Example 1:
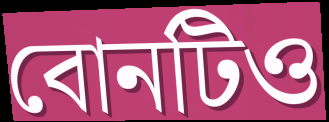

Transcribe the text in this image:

বোনটিও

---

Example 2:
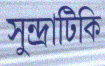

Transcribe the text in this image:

সুন্দ্রাটিকি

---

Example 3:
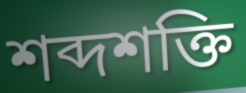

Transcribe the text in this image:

শব্দশক্তি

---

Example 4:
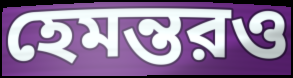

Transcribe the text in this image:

হেমন্তরও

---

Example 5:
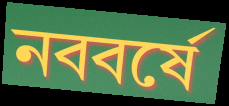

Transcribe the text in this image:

নববর্ষে